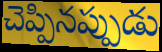
చెప్పినప్పుడు